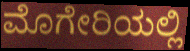
ಮೊಗೇರಿಯಲ್ಲಿ